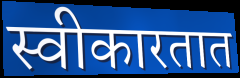
स्वीकारतात